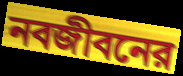
নবজীবনের